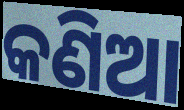
କଣିଆ